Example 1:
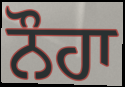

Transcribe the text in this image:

ਨੌਹਾ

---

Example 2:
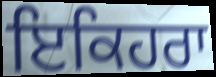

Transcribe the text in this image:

ਇਕਿਹਰਾ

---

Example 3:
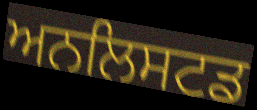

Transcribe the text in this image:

ਅਨਲਿਸਟਡ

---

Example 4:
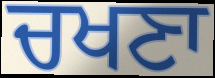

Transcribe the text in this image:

ਚਖਣਾ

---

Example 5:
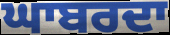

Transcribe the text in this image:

ਘਾਬਰਦਾ